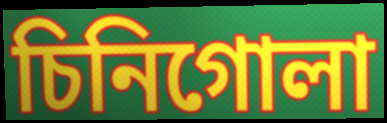
চিনিগোলা